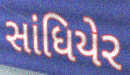
સાંધિયેર